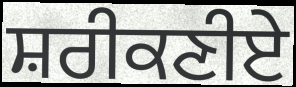
ਸ਼ਰੀਕਣੀਏ